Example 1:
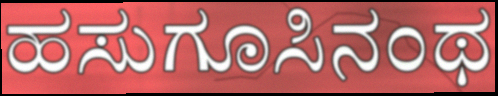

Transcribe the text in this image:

ಹಸುಗೂಸಿನಂಥ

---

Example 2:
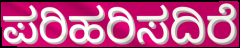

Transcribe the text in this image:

ಪರಿಹರಿಸದಿರೆ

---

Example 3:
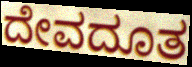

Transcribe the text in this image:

ದೇವದೂತ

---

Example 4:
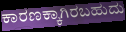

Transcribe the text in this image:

ಕಾರಣಕ್ಕಾಗಿರಬಹುದು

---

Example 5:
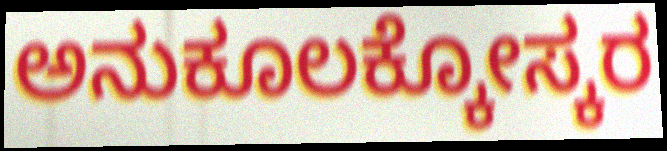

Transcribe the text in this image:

ಅನುಕೂಲಕ್ಕೋಸ್ಕರ